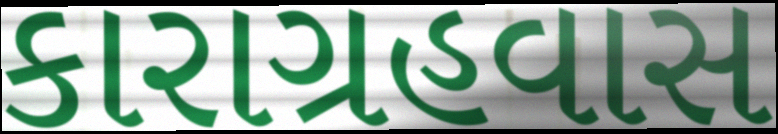
કારાગ્રહવાસ